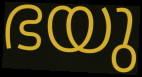
ഭയു